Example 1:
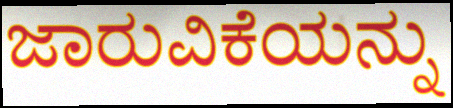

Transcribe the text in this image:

ಜಾರುವಿಕೆಯನ್ನು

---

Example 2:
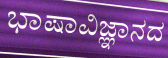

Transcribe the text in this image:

ಭಾಷಾವಿಜ್ಞಾನದ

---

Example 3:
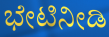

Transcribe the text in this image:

ಭೇಟಿನೀಡಿ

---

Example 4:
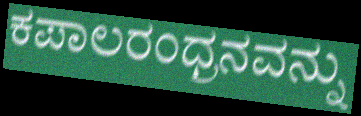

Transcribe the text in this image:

ಕಪಾಲರಂಧ್ರನವನ್ನು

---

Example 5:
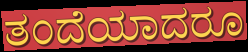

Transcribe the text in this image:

ತಂದೆಯಾದರೂ